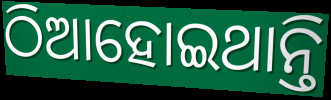
ଠିଆହୋଇଥାନ୍ତି